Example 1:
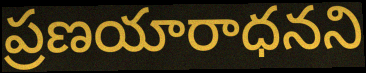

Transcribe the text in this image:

ప్రణయారాధనని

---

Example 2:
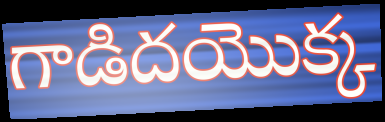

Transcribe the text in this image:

గాడిదయొక్క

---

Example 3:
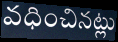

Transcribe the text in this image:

వధించినట్లు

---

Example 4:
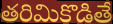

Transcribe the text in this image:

తరిమికొడితే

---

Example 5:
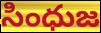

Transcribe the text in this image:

సింధుజ